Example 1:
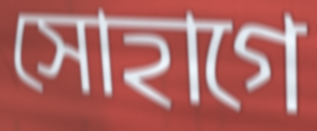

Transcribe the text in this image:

সোহাগে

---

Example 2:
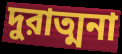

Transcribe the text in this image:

দুরাত্মনা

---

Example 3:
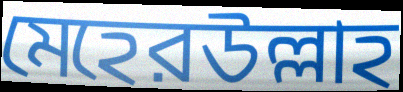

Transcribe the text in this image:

মেহেরউল্লাহ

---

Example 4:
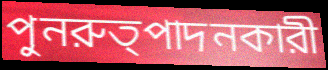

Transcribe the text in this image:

পুনরুত্পাদনকারী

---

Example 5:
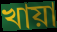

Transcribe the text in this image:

খায়া